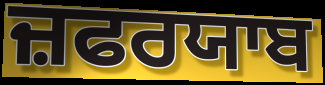
ਜ਼ਫਰਯਾਬ